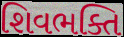
શિવભક્તિ